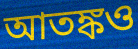
আতঙ্কও